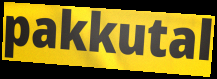
pakkutal